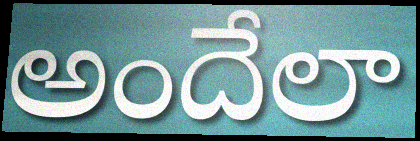
అందేలా